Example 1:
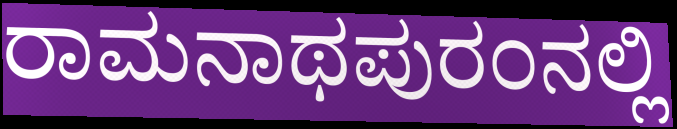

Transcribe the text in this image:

ರಾಮನಾಥಪುರಂನಲ್ಲಿ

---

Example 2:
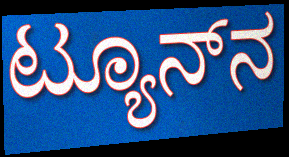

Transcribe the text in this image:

ಟ್ಯೂನ್‌ನ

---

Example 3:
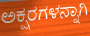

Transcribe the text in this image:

ಅಕ್ಷರಗಳನ್ನಾಗಿ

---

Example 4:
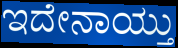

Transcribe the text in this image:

ಇದೇನಾಯ್ತು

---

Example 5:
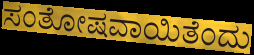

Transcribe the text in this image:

ಸಂತೋಷವಾಯಿತೆಂದು